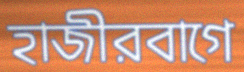
হাজীরবাগে